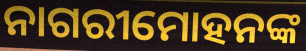
ନାଗରୀମୋହନଙ୍କ